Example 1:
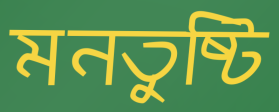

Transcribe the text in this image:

মনতুষ্টি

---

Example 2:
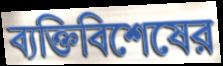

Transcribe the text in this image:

ব্যক্তিবিশেষের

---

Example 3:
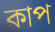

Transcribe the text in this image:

কাপ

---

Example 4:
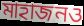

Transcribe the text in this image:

মাহাজনও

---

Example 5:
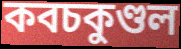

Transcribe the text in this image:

কবচকুণ্ডল